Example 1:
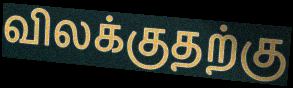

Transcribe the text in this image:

விலக்குதற்கு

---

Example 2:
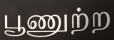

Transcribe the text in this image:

பூணுற்ற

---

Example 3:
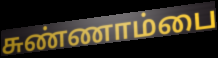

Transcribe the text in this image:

சுண்ணாம்பை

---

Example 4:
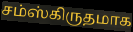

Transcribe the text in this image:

சம்ஸ்கிருதமாக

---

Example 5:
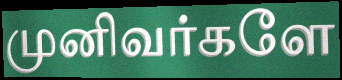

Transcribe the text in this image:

முனிவர்களே